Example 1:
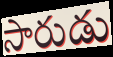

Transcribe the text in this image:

సారుడు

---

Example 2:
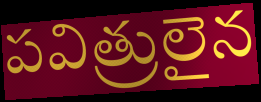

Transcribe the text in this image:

పవిత్రులైన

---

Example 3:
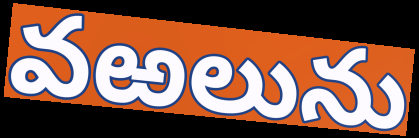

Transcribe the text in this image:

వఱలును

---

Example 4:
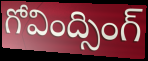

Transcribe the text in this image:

గోవింద్సింగ్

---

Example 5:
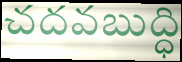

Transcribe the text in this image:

చదవబుద్ధి